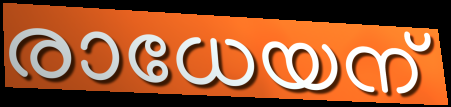
രാധേയന്